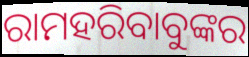
ରାମହରିବାବୁଙ୍କର